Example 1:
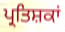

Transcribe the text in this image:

ਪ੍ਰਤਿਸ਼ਕਾਂ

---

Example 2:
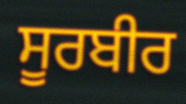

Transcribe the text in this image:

ਸੂਰਬੀਰ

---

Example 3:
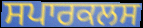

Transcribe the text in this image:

ਸਪਾਰਕਲਸ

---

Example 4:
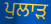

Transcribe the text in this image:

ਪੁਲਾੜ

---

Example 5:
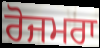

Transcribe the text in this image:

ਰੋਜਮਰਾ